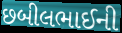
છબીલભાઈની